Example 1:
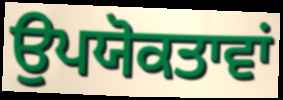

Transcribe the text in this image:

ਉਪਯੋਕਤਾਵਾਂ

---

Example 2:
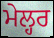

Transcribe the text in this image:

ਮੇਲ੍ਹਰ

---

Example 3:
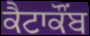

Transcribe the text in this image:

ਕੈਟਾਕੌਂਬ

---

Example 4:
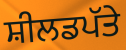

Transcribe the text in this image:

ਸ਼ੀਲਡਪੱਤੇ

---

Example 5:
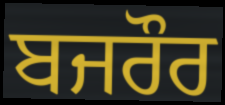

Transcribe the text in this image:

ਬਜਰੌਰ